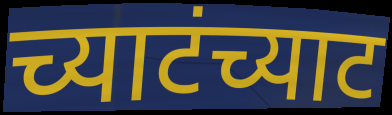
च्याटंच्याट